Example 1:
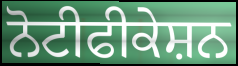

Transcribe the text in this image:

ਨੋਟੀਫੀਕੇਸ਼ਨ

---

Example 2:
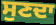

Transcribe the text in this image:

ਸੁਣਦਾ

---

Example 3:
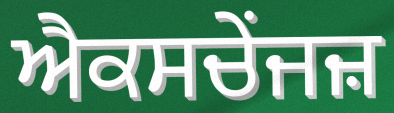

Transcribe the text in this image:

ਐਕਸਚੇਂਜਜ਼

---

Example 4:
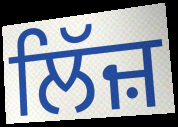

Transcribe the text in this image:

ਲਿੱਜ਼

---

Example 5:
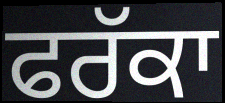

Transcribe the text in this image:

ਫਰੱਕਾ